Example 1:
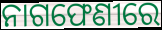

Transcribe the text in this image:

ନାଗଫେଣୀରେ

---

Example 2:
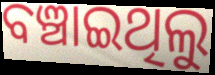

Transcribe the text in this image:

ବଞ୍ଚାଇଥିଲୁ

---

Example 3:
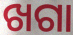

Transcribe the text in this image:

ଖଗା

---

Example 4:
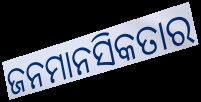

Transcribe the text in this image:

ଜନମାନସିକତାର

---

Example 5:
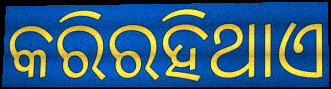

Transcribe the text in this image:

କରିରହିଥାଏ